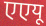
एएयू